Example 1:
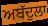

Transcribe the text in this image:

ਅਬੱਦੁਲਾ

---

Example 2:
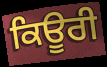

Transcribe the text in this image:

ਕਿਊਰੀ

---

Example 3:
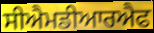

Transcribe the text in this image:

ਸੀਐਮਡੀਆਰਐਫ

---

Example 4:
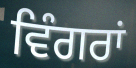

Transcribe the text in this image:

ਵਿੰਗਰਾਂ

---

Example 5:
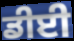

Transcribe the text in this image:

ਡੀਈ